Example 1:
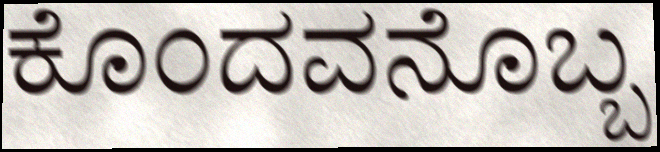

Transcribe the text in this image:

ಕೊಂದವನೊಬ್ಬ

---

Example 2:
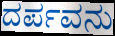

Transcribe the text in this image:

ದರ್ಪವನು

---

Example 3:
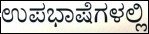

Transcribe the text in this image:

ಉಪಭಾಷೆಗಳಲ್ಲಿ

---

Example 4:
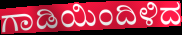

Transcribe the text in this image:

ಗಾಡಿಯಿಂದಿಳಿದ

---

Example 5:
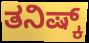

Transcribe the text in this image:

ತನಿಷ್ಕ್